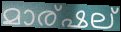
മാര്ഷല്